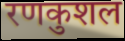
रणकुशल